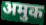
अमुक